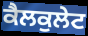
ਕੈਲਕੁਲੇਟ